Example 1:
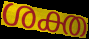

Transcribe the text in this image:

ശക്ത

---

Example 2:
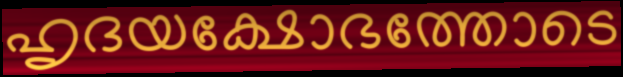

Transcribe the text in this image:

ഹൃദയക്ഷോഭത്തോടെ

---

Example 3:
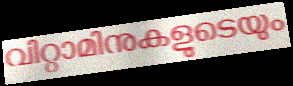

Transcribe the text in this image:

വിറ്റാമിനുകളുടെയും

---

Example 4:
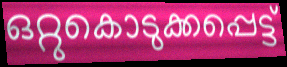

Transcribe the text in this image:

ഒറ്റുകൊടുക്കപ്പെട്ട്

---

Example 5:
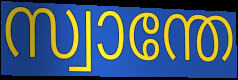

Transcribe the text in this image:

സ്വാന്തേ